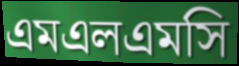
এমএলএমসি